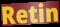
Retin